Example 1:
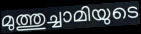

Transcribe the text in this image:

മുത്തുച്ചാമിയുടെ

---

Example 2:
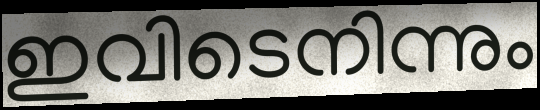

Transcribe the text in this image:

ഇവിടെനിന്നും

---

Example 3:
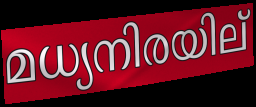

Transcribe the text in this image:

മധ്യനിരയില്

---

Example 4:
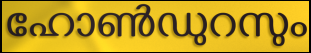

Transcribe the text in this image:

ഹോൺഡുറസും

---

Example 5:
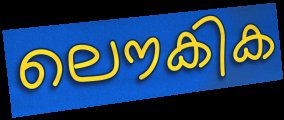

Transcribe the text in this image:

ലൌകിക